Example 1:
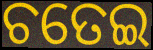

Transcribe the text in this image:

ଚତେଇ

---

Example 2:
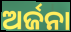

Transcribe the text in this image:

ଅର୍ଜନା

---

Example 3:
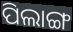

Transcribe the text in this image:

ପିଲାଙ୍ଗ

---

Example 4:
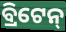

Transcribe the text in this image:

ବ୍ରିଟେନ୍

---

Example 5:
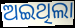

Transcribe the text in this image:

ଅଇଥିଲା